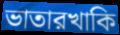
ভাতারখাকি